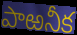
పాఱనీక